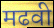
मढवी